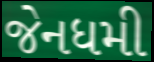
જેનધમી